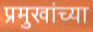
प्रमुखांच्या